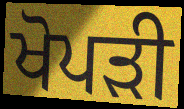
ਖੋਪੜੀ